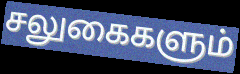
சலுகைகளும்